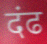
दंढ